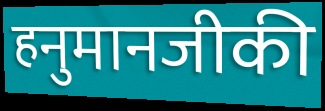
हनुमानजीकी